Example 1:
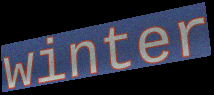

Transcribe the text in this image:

winter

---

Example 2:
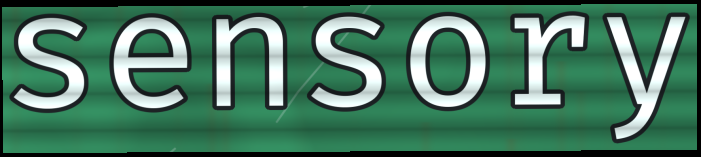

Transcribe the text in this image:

sensory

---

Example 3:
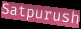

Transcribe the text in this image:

Satpurush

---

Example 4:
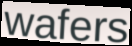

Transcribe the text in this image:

wafers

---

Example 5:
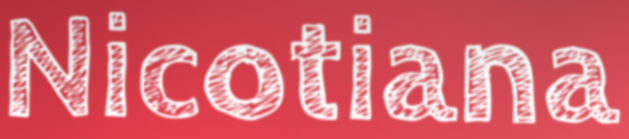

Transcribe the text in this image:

Nicotiana